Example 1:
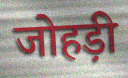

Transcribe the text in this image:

जोहड़ी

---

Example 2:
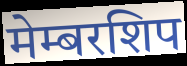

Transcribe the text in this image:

मेम्बरशिप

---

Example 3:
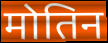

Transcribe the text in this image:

मोतिन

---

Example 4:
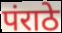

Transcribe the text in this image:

पंराठे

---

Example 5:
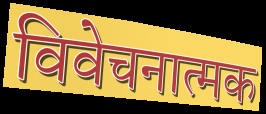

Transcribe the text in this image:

विवेचनात्मक